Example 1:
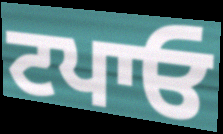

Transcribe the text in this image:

ਟਪਾਓ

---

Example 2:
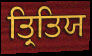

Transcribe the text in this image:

ਤ੍ਰਿਤਿਯ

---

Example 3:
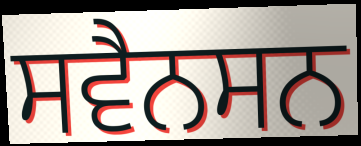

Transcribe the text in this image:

ਸਵੈਨਸਨ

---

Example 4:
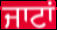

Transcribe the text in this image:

ਜਾਟਾਂ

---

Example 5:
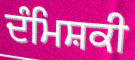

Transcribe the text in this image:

ਦੰਮਿਸ਼ਕੀ